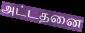
அட்டதனை